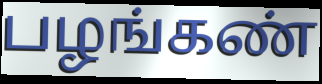
பழங்கண்